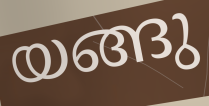
യങ്ങു